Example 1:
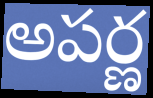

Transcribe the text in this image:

అపర్ణ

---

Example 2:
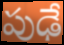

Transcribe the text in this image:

పుఢే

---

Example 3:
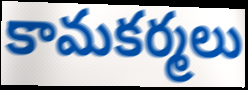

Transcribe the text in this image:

కామకర్మలు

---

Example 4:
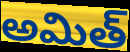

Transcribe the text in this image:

అమిత్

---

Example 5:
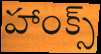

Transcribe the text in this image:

హాంక్స్